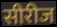
सीरीज